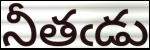
నీతఁడు